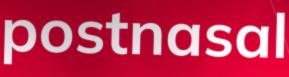
postnasal